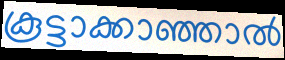
കൂട്ടാക്കാഞ്ഞാൽ